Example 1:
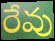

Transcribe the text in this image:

రేవు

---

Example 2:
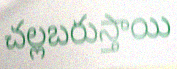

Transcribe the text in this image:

చల్లబరుస్తాయి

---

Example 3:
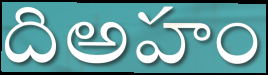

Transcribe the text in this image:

దిఅహం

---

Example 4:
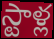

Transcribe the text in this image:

స్టాళ్ల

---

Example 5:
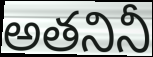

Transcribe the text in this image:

అతనినీ